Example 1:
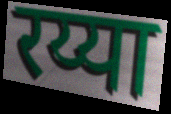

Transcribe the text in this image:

रय्या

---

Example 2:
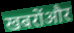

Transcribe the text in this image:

खबरोंऔर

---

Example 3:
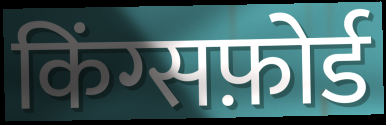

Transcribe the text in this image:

किंग्सफ़ोर्ड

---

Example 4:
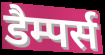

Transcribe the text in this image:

डैम्पर्स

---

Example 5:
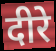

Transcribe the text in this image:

दीरे